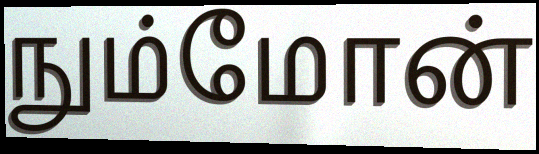
நும்மோன்